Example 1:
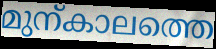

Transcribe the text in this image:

മുന്കാലത്തെ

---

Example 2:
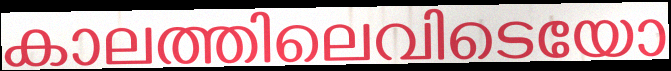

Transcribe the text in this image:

കാലത്തിലെവിടെയോ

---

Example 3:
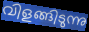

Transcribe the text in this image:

വിളങ്ങിടുന്നു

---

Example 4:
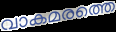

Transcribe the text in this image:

വാകമരത്തെ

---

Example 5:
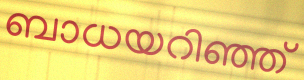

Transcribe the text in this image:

ബാധയറിഞ്ഞ്